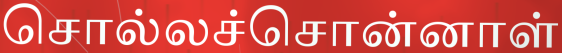
சொல்லச்சொன்னாள்